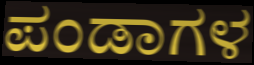
ಪಂಡಾಗಳ